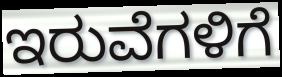
ಇರುವೆಗಳಿಗೆ